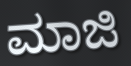
ಮಾಜಿ